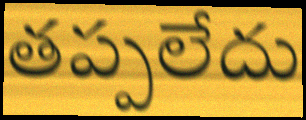
తప్పలేదు